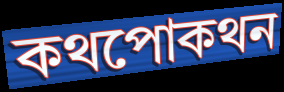
কথপোকথন